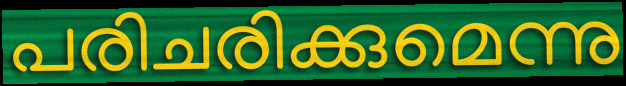
പരിചരിക്കുമെന്നു